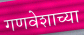
गणवेशाच्या